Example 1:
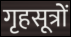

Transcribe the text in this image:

गृहसूत्रों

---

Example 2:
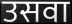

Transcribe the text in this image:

उसवा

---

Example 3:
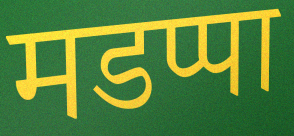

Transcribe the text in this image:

मडप्पा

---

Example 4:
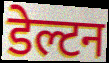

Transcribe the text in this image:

डेल्टन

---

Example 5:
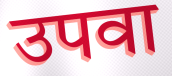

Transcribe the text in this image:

उपवा